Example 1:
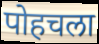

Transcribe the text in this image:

पोहचला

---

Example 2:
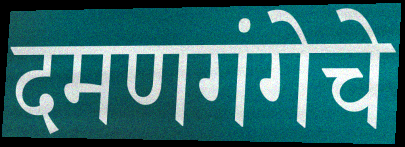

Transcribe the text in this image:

दमणगंगेचे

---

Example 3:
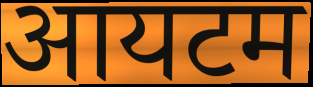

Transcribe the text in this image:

आयटम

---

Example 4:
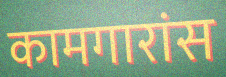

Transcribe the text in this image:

कामगारांस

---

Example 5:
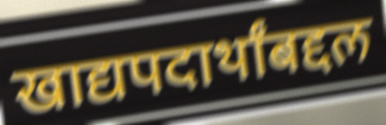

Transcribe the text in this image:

खाद्यपदार्थांबद्दल